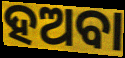
ହଅବା